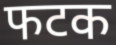
फटक